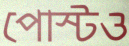
পোস্টও